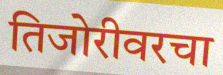
तिजोरीवरचा